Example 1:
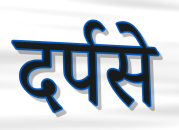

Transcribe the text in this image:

दर्पसे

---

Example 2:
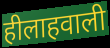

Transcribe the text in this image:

हीलाहवाली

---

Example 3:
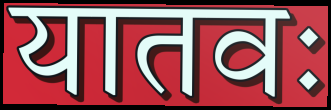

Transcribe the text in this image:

यातवः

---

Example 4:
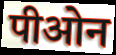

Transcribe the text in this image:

पीओन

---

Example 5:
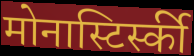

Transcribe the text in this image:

मोनास्टिर्स्की